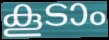
കൂടാം